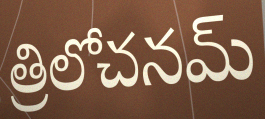
త్రిలోచనమ్